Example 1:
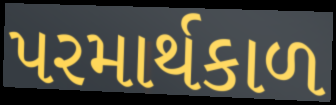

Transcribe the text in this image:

પરમાર્થકાળ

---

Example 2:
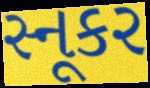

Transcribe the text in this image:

સ્નૂકર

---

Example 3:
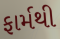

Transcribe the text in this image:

ફાર્મથી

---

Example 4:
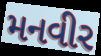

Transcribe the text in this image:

મનવીર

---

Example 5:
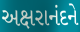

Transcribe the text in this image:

અક્ષરાનંદને